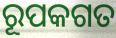
ରୂପକଗତ